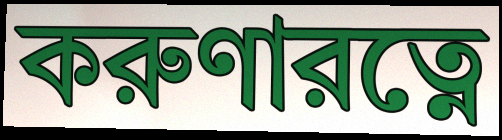
করুণারত্নে